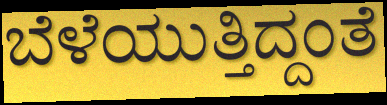
ಬೆಳೆಯುತ್ತಿದ್ದಂತೆ